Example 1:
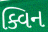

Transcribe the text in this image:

ક્વિન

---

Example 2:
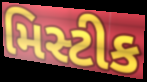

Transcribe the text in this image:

મિસ્ટીક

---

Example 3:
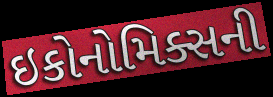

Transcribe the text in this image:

ઇકોનોમિક્સની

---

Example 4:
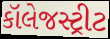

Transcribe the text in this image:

કૉલેજસ્ટ્રીટ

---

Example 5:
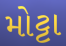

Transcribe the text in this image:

મોટ્ટા